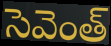
సెవెంత్